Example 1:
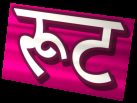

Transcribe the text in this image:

रूट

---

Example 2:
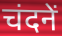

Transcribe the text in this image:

चंदनें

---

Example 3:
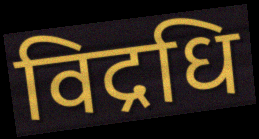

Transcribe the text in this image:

विद्रधि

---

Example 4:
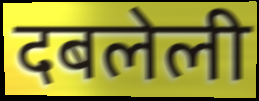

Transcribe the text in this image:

दबलेली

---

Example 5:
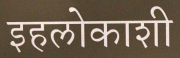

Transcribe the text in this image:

इहलोकाशी